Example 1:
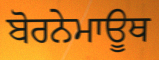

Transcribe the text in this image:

ਬੋਰਨੇਮਾਊਥ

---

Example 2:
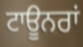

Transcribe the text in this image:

ਟਾਊਨਰਾਂ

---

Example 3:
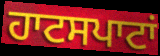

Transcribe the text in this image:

ਹਾਟਸਪਾਟਾਂ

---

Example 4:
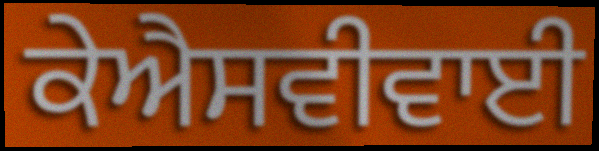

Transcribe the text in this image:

ਕੇਐਸਵੀਵਾਈ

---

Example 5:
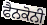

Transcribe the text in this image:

ਫੈਨਕੋਨੀ